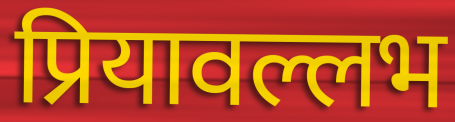
प्रियावल्लभ